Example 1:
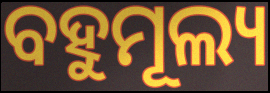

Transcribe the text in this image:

ବହୁମୂଲ୍ୟ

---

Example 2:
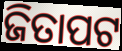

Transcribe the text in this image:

ଜିତାପଟ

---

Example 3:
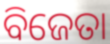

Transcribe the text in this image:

ବିଜେତା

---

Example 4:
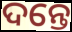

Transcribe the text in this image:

ଦନ୍ତେ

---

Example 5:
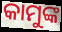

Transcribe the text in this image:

କାମୁଙ୍କ